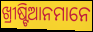
ଖ୍ରୀଷ୍ଟିଆନମାନେ